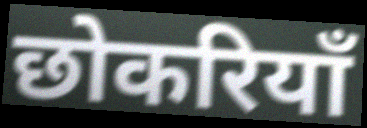
छोकरियाँ